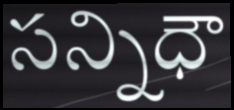
సన్నిధౌ